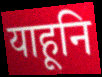
याहूनि